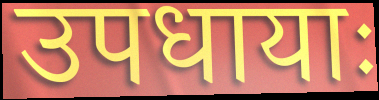
उपधायाः